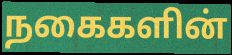
நகைகளின்